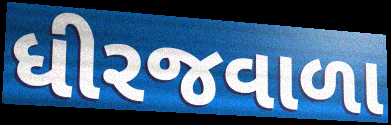
ધીરજવાળા